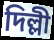
দিল্লী